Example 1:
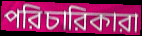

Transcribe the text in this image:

পরিচারিকারা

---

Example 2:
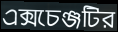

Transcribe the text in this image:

এক্সচেঞ্জটির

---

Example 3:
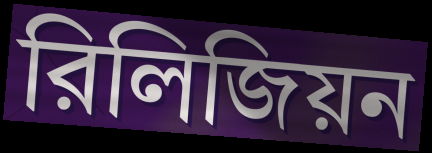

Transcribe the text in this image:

রিলিজিয়ন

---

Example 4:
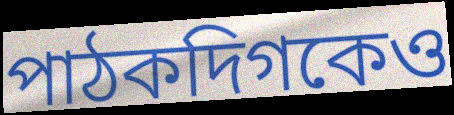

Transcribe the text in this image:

পাঠকদিগকেও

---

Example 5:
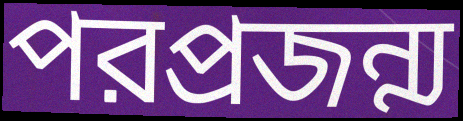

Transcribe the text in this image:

পরপ্রজন্ম